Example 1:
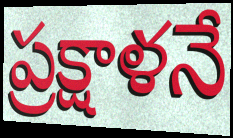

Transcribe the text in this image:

ప్రక్షాళనే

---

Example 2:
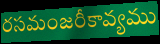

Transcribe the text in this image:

రసమంజరీకావ్యము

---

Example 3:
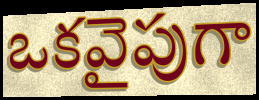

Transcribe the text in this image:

ఒకవైపుగా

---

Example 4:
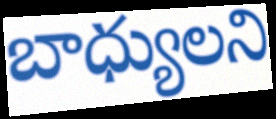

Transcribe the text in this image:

బాధ్యులని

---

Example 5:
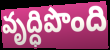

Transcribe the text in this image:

వృద్ధిపొంది